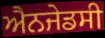
ਐਨਜੇਡਸੀ